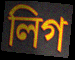
লিগ